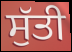
ਸੁੱਤੀ